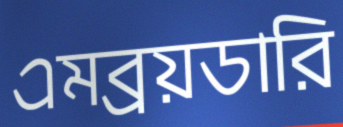
এমব্রয়ডারি